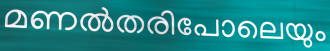
മണൽതരിപോലെയും